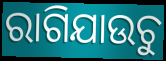
ରାଗିଯାଉଚୁ